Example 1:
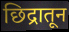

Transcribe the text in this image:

छिद्रातून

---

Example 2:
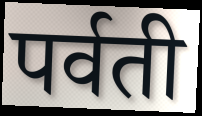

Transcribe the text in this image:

पर्वती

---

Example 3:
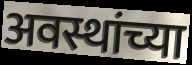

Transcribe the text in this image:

अवस्थांच्या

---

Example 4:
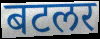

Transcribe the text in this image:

बटलर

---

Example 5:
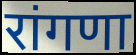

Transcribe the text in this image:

रांगणा